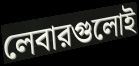
লেবারগুলোই